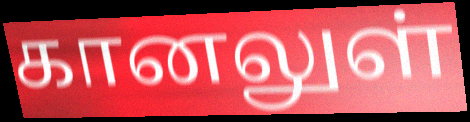
கானலுள்